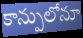
కాన్పులోనూ